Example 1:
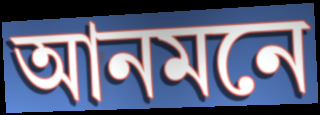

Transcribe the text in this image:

আনমনে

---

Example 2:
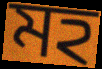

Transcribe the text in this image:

মহ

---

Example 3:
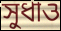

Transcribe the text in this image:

সুধাও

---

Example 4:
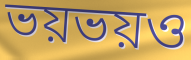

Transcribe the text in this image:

ভয়ভয়ও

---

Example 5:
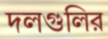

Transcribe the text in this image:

দলগুলির